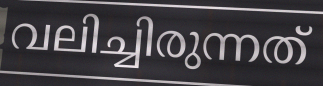
വലിച്ചിരുന്നത്